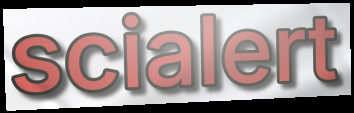
scialert